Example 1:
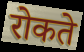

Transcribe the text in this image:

रोकते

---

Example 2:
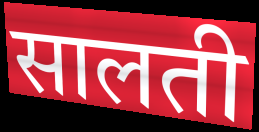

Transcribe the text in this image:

सालती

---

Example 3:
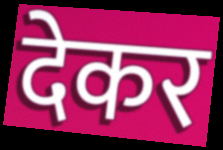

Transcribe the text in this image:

देकर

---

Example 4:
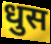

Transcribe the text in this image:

धुस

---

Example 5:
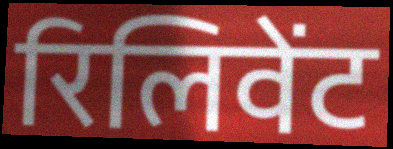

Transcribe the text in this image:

रिलिवेंट